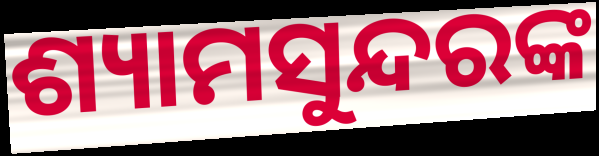
ଶ୍ୟାମସୁନ୍ଦରଙ୍କ